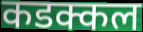
कडक्कल